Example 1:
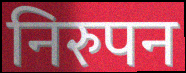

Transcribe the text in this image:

निरुपन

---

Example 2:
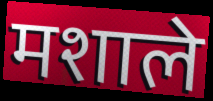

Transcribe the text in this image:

मशाले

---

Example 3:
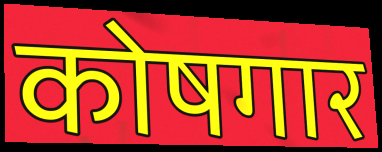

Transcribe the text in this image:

कोषगार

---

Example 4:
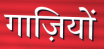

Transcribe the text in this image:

गाज़ियों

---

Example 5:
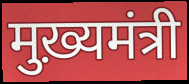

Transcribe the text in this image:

मुख़्यमंत्री